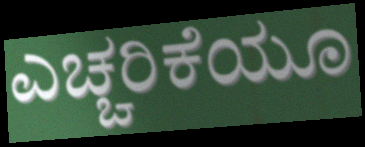
ಎಚ್ಚರಿಕೆಯೂ